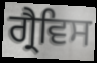
ਗ੍ਰੈਵਿਸ